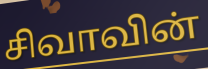
சிவாவின்